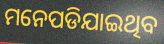
ମନେପଡିଯାଇଥିବ